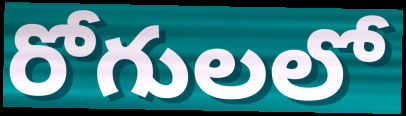
రోగులలో